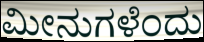
ಮೀನುಗಳೆಂದು